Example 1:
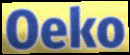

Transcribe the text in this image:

Oeko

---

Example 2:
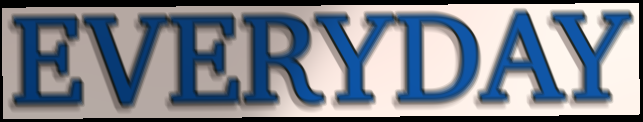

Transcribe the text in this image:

EVERYDAY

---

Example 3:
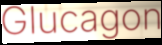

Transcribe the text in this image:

Glucagon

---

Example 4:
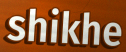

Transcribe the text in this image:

shikhe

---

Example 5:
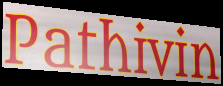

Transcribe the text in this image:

Pathivin